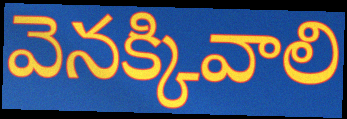
వెనక్కివాలి